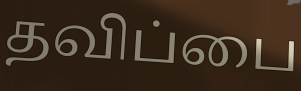
தவிப்பை